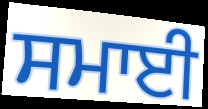
ਸਮਾਈ